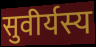
सुवीर्यस्य